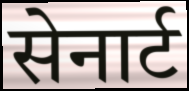
सेनार्ट